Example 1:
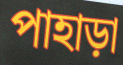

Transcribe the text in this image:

পাহাড়া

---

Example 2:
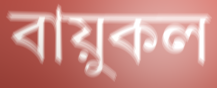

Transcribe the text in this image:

বায়ুকল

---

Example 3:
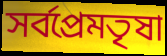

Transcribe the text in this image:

সর্বপ্রেমতৃষা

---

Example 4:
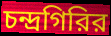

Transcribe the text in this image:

চন্দ্রগিরির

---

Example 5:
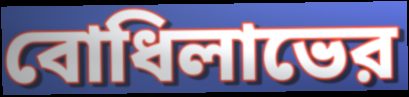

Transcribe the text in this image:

বোধিলাভের